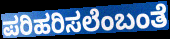
ಪರಿಹರಿಸಲೆಂಬಂತೆ